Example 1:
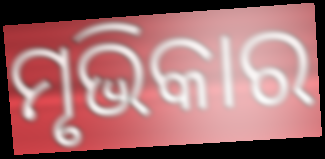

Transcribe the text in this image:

ମୃଭିକାର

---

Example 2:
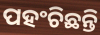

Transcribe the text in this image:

ପହଂଚିଛନ୍ତି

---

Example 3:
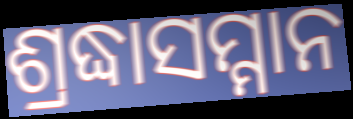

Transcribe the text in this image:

ଶ୍ରଦ୍ଧାସମ୍ମାନ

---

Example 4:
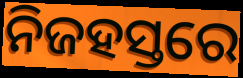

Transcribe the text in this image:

ନିଜହସ୍ତରେ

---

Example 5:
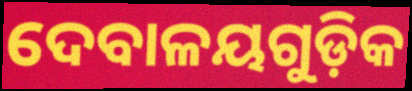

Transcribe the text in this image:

ଦେବାଳୟଗୁଡ଼ିକ